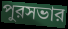
পুরসভার